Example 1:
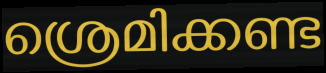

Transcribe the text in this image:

ശ്രെമിക്കണ്ട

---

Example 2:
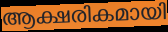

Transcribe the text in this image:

ആക്ഷരികമായി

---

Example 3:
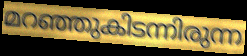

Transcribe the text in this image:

മറഞ്ഞുകിടന്നിരുന്ന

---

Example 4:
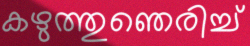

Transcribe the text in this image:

കഴുത്തുഞെരിച്ച്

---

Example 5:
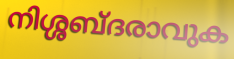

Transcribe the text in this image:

നിശ്ശബ്ദരാവുക